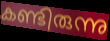
കണ്ടിരുന്നു